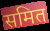
समित